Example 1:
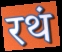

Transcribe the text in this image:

रथं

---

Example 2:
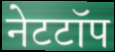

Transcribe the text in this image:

नेटटॉप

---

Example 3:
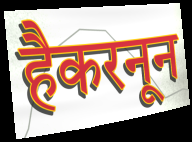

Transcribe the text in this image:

हैकरनून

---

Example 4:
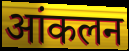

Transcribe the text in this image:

आंकलन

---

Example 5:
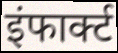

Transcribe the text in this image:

इंफार्क्ट